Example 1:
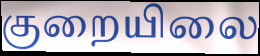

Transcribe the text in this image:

குறையிலை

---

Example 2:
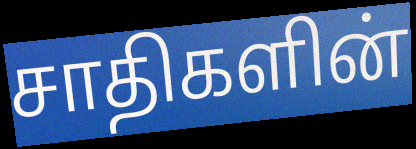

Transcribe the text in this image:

சாதிகளின்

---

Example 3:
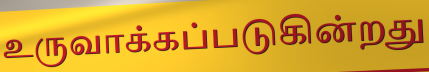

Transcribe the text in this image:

உருவாக்கப்படுகின்றது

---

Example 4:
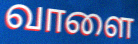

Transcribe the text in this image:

வாளை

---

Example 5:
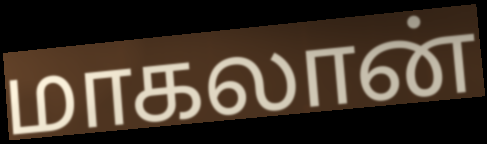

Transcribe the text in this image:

மாகலான்